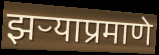
झऱ्याप्रमाणे